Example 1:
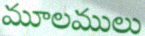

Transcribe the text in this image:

మూలములు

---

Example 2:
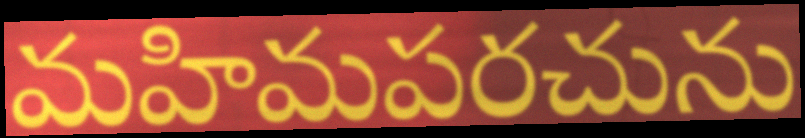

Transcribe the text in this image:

మహిమపరచును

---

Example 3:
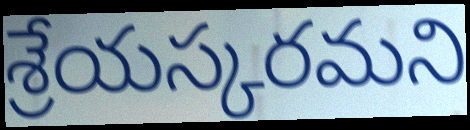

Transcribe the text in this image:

శ్రేయస్కరమని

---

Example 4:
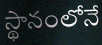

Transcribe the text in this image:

స్థానంలోనే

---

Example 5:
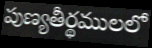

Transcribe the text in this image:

పుణ్యతీర్థములలో